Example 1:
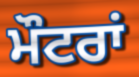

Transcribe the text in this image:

ਮੌਟਰਾਂ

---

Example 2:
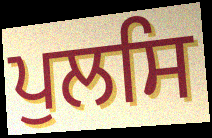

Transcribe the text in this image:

ਪੁਲਸਿ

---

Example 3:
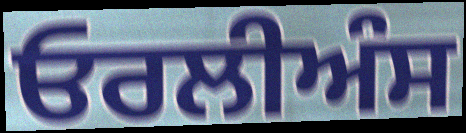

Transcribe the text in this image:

ਓਰਲੀਅੰਸ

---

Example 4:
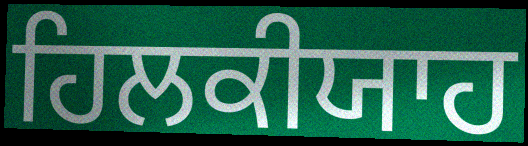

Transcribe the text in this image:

ਹਿਲਕੀਯਾਹ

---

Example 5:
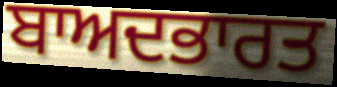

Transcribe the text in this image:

ਬਾਅਦਭਾਰਤ